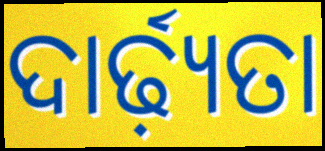
ଦାର୍ଢ଼୍ୟତା